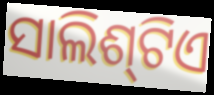
ସାଲିଶ୍‌ଟିଏ